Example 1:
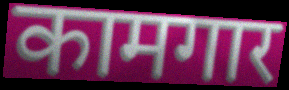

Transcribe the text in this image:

कामगार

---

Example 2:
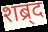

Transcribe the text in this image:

शब्र्द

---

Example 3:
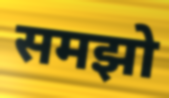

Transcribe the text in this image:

समझो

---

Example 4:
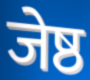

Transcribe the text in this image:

जेष्ठ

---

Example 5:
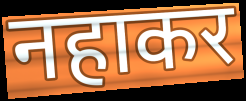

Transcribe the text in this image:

नहाकर